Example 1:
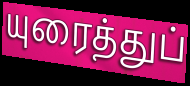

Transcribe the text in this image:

யுரைத்துப்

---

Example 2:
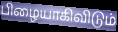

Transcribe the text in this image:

பிழையாகிவிடும்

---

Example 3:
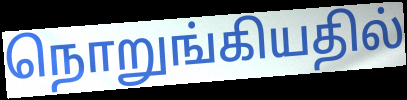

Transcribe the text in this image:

நொறுங்கியதில்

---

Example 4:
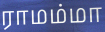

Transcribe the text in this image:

ராமம்மா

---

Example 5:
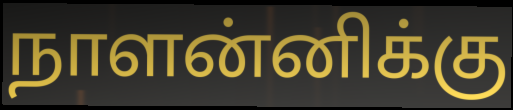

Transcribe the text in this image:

நாளன்னிக்கு